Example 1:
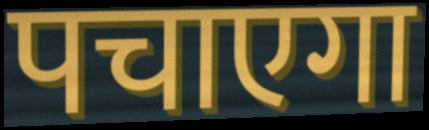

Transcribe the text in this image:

पचाएगा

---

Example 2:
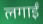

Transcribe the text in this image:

लगाईं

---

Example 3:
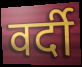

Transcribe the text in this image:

वर्दी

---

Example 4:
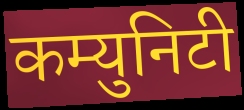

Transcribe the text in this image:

कम्युनिटी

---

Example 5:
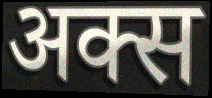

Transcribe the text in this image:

अक्स